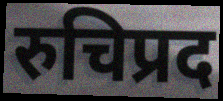
रुचिप्रद